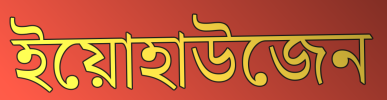
ইয়োহাউজেন